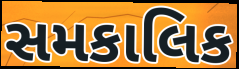
સમકાલિક